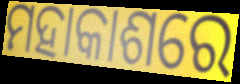
ମହାକାଶରେ